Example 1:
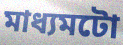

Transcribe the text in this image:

মাধ্যমটো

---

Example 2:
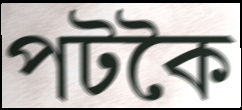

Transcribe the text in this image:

পটকৈ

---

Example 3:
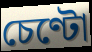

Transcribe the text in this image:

চেণ্টো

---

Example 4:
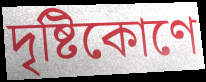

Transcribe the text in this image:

দৃষ্টিকোণে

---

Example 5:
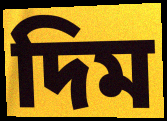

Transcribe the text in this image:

দিম